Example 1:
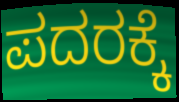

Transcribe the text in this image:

ಪದರಕ್ಕೆ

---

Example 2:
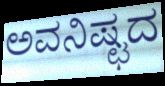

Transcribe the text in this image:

ಅವನಿಷ್ಟದ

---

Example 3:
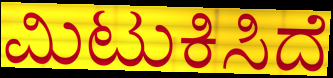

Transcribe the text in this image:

ಮಿಟುಕಿಸಿದೆ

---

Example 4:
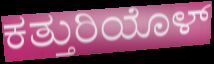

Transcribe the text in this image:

ಕತ್ತುರಿಯೊಳ್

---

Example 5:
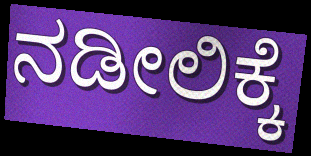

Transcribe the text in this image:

ನಡೀಲಿಕ್ಕೆ